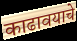
काढावयाचे